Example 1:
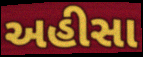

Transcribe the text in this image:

અહીસા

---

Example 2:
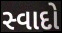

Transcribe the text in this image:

સ્વાદો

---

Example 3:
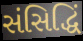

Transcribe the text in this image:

સંસિદ્ધિં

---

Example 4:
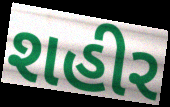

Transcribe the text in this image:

શહીર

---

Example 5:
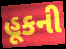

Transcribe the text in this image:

હૂકની